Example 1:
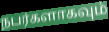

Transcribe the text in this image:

நபர்களாகவும்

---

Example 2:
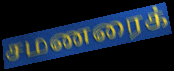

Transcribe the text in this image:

சமணரைக்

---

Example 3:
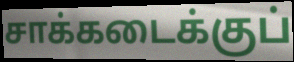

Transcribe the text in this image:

சாக்கடைக்குப்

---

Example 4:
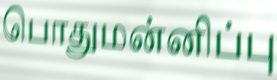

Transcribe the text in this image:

பொதுமன்னிப்பு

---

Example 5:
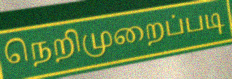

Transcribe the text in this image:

நெறிமுறைப்படி